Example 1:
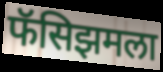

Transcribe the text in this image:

फॅसिझमला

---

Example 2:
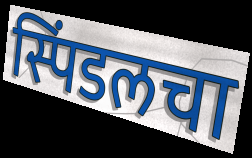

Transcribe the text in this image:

स्पिंडलचा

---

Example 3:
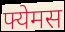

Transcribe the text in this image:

फ्येमस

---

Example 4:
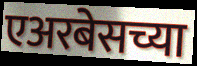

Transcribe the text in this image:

एअरबेसच्या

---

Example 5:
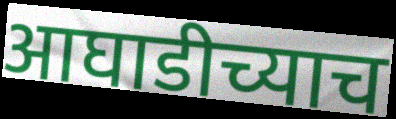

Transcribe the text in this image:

आघाडीच्याच